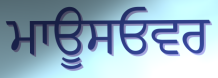
ਮਾਊਸਓਵਰ